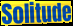
Solitude